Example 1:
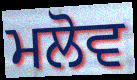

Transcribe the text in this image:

ਮਲੋਵ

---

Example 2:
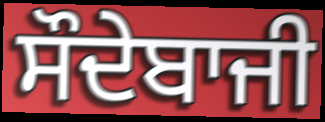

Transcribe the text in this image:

ਸੌਦੇਬਾਜੀ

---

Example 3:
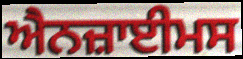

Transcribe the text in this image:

ਐਨਜ਼ਾਈਮਸ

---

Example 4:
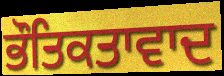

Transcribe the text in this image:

ਭੌਤਿਕਤਾਵਾਦ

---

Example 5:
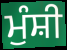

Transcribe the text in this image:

ਮੁੰਸ਼ੀ